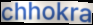
chhokra